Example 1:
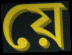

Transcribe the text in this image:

য়ে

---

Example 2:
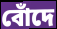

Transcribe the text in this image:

বোঁদে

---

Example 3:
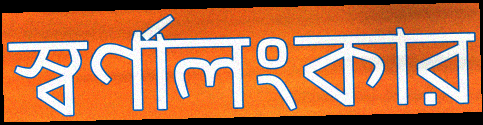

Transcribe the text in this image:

স্বর্ণালংকার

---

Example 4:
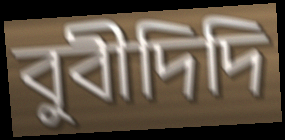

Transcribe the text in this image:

বুবীদিদি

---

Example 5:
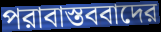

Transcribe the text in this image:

পরাবাস্তববাদের